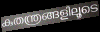
കുതന്ത്രങ്ങളിലൂടെ